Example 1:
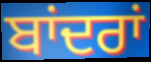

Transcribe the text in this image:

ਬਾਂਦਰਾਂ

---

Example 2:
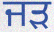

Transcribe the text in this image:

ਜੜ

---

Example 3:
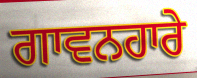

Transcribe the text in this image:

ਗਾਵਨਹਾਰੇ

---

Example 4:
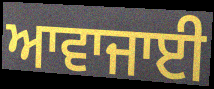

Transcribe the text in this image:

ਆਵਾਜਾਈ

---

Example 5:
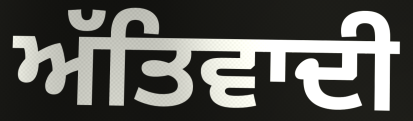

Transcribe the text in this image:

ਅੱਤਿਵਾਦੀ